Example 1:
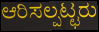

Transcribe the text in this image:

ಆರಿಸಲ್ಪಟ್ಟರು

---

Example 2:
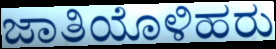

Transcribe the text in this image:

ಜಾತಿಯೊಳಿಹರು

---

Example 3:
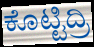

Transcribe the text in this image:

ಕೊಟ್ಟಿದ್ರಿ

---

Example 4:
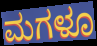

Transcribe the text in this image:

ಮಗಳೂ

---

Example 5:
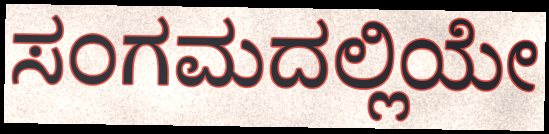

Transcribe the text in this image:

ಸಂಗಮದಲ್ಲಿಯೇ